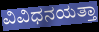
ವಿವಿಧನಯತ್ತಾ